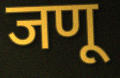
जणू